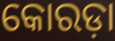
କୋରଡ଼ା